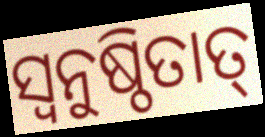
ସ୍ଵନୁଷ୍ଠିତାତ୍